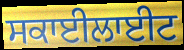
ਸਕਾਈਲਾਈਟ